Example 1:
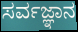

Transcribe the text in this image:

ಸರ್ವಜ್ಞಾನ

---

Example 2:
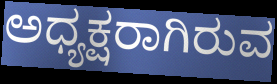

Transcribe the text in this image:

ಅಧ್ಯಕ್ಷರಾಗಿರುವ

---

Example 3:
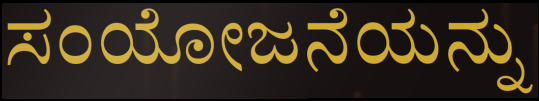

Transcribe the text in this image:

ಸಂಯೋಜನೆಯನ್ನು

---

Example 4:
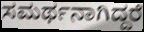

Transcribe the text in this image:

ಸಮರ್ಥನಾಗಿದ್ದರೆ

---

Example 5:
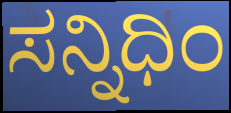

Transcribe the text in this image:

ಸನ್ನಿಧಿಂ